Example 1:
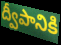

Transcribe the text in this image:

ద్వీపానికి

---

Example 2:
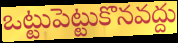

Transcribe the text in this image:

ఒట్టుపెట్టుకొనవద్దు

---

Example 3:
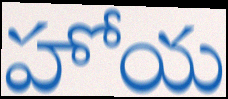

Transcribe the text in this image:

హోయ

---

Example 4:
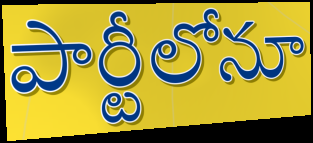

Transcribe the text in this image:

పార్టీలోనూ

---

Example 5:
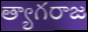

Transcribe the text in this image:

త్యాగరాజ